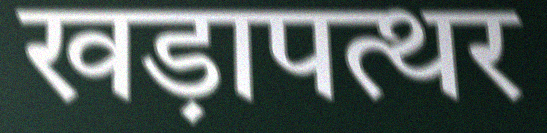
खड़ापत्थर